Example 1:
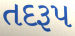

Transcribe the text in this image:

તદરૂપ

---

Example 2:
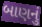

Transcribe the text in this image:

બાણનું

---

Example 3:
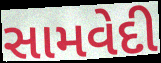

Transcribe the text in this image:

સામવેદી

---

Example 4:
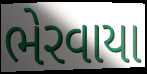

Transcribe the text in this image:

ભેરવાયા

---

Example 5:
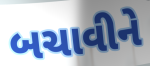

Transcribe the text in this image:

બચાવીને